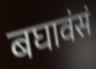
बघावंसं